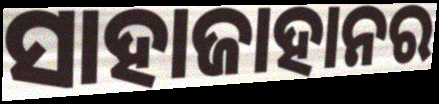
ସାହାଜାହାନର